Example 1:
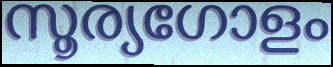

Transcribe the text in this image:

സൂര്യഗോളം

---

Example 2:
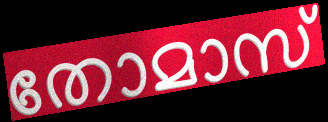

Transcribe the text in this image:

തോമാസ്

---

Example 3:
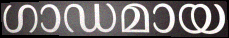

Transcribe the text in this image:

ഗാഡമായ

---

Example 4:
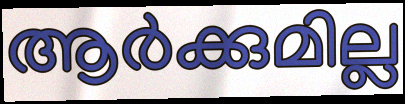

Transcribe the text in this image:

ആർക്കുമില്ല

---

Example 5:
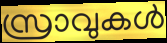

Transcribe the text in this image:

സ്രാവുകൾ